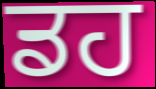
ਡਹ